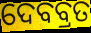
ଦେବବ୍ରତ